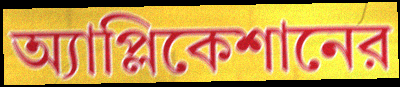
অ্যাপ্লিকেশানের